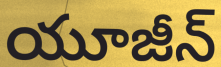
యూజీన్